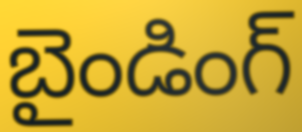
బైండింగ్